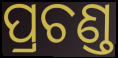
ପ୍ରଚଣ୍ଡ